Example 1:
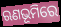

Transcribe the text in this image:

ଋଣଭୂମିରେ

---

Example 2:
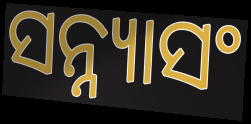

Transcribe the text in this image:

ସନ୍ନ୍ୟାସଂ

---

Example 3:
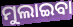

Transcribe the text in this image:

ମୁଲାଇବା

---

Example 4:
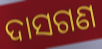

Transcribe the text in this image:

ଦାସଗଣ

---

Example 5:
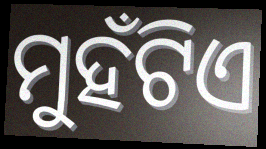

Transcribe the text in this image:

ମୁହଁଟିଏ